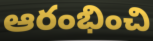
ఆరంభించి